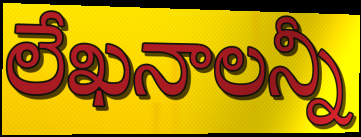
లేఖనాలన్నీ